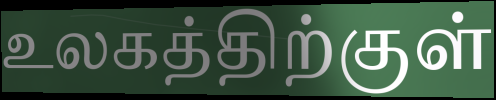
உலகத்திற்குள்